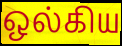
ஒல்கிய